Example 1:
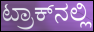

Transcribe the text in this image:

ಟ್ರಾಕ್‌ನಲ್ಲಿ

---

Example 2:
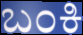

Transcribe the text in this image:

ಬಂಕಿ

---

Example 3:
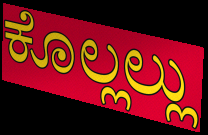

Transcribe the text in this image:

ಕೊಲ್ಲಲ್ಲು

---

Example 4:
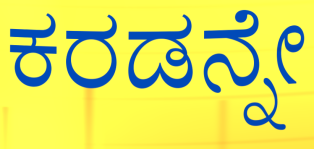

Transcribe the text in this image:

ಕರಡನ್ನೇ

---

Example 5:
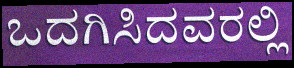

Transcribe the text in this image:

ಒದಗಿಸಿದವರಲ್ಲಿ